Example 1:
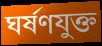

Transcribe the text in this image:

ঘর্ষণযুক্ত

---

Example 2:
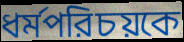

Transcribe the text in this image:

ধর্মপরিচয়কে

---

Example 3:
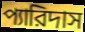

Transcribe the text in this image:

প্যারিদাস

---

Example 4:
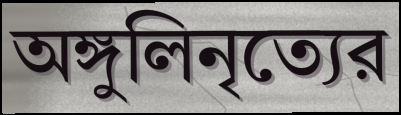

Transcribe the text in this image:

অঙ্গুলিনৃত্যের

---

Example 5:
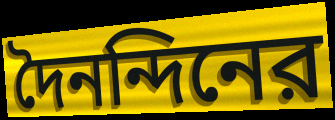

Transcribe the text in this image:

দৈনন্দিনের